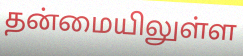
தன்மையிலுள்ள